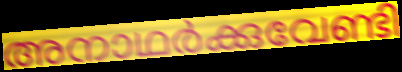
അനാഥർക്കുവേണ്ടി